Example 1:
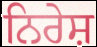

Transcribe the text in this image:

ਨਿਰੇਸ਼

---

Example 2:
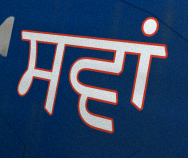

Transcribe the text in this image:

ਸਵਾਂ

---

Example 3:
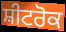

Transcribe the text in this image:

ਸ਼ੀਟਰੋਕ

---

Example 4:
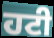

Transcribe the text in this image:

ਹਟੀ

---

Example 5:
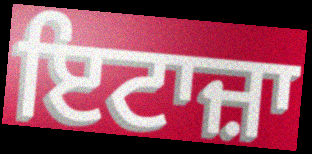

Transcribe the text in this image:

ਇਟਾਜ਼ਾ